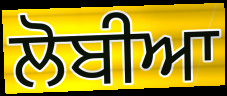
ਲੋਬੀਆ